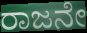
ರಾಜನೇ